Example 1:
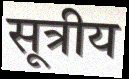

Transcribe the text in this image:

सूत्रीय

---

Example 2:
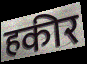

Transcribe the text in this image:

हकीर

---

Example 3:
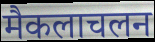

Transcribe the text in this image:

मैकलाचलन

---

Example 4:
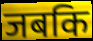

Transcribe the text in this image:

जबकि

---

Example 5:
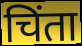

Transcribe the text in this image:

चिंता